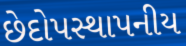
છેદોપસ્થાપનીય